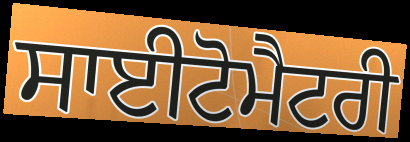
ਸਾਈਟੋਮੈਟਰੀ